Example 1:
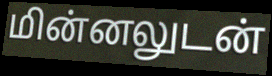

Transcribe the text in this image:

மின்னலுடன்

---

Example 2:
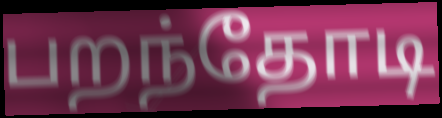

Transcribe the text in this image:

பறந்தோடி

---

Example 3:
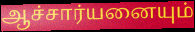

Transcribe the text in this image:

ஆச்சார்யனையும்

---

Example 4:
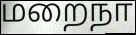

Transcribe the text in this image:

மறைநா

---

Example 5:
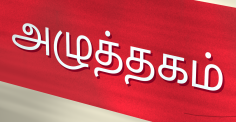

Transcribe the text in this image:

அழுத்தகம்